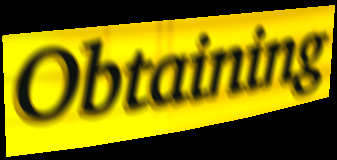
Obtaining